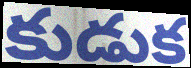
కుడుక